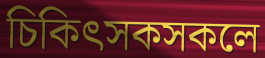
চিকিৎসকসকলে